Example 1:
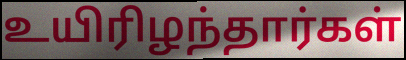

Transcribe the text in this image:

உயிரிழந்தார்கள்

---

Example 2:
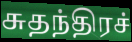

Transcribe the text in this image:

சுதந்திரச்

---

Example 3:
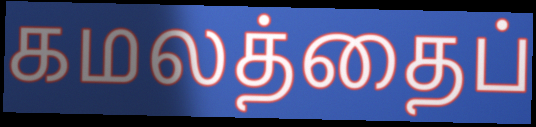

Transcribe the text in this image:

கமலத்தைப்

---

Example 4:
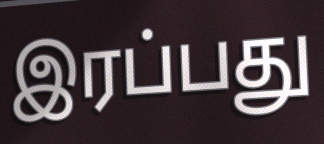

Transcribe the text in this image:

இரப்பது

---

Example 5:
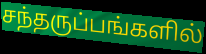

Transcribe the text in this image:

சந்தருப்பங்களில்